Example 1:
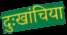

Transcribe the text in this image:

दुःखांचिया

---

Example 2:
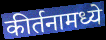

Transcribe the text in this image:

कीर्तनामध्ये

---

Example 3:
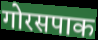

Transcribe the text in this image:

गोरसपाक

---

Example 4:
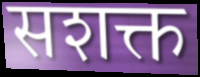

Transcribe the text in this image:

सशक्त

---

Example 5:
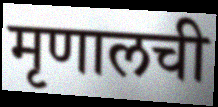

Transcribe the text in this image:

मृणालची